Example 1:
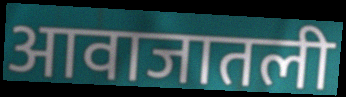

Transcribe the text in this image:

आवाजातली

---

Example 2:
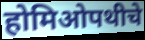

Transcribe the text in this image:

होमिओपथीचे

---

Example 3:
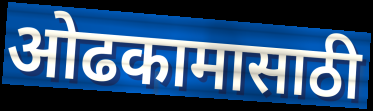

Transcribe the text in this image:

ओढकामासाठी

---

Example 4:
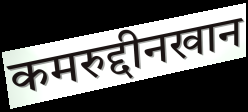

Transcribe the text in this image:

कमरुद्दीनखान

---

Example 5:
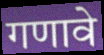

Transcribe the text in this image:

गणावे